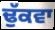
ਢੁੱਕਵਾ